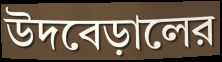
উদবেড়ালের